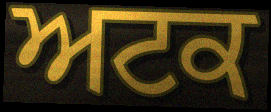
ਅਟਕ